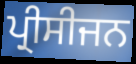
ਪ੍ਰੀਸੀਜਨ